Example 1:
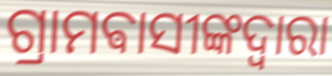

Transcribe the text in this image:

ଗ୍ରାମଵାସୀଙ୍କଦ୍ୱାରା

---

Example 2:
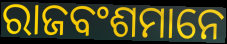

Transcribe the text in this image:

ରାଜବଂଶମାନେ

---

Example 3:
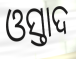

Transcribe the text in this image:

ଓସ୍ତାଦ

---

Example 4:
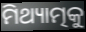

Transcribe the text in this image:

ମିଥ୍ୟାତ୍ମକୁ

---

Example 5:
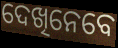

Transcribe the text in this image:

ଦେଖିନେବେ